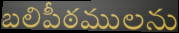
బలిపీఠములను